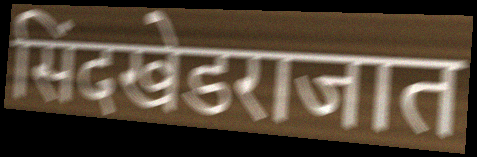
सिंदखेडराजात